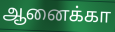
ஆனைக்கா